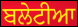
ਬਲੇਟੀਆ